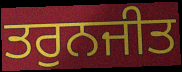
ਤਰੁਨਜੀਤ